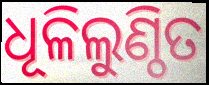
ଧୂଳିଲୁଣ୍ଠିତ